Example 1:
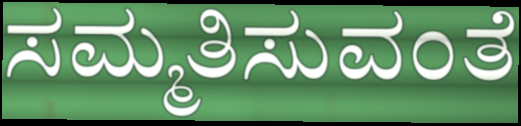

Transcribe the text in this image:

ಸಮ್ಮತಿಸುವಂತೆ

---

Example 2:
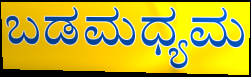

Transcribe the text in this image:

ಬಡಮಧ್ಯಮ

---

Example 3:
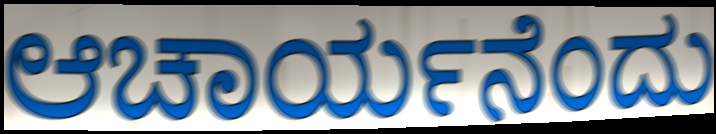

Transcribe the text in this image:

ಆಚಾರ್ಯನೆಂದು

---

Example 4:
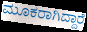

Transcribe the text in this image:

ಮೂಕರಾಗಿದ್ದಾರೆ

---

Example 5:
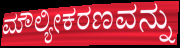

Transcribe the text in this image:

ಮೌಲ್ಯೀಕರಣವನ್ನು